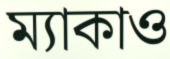
ম্যাকাও